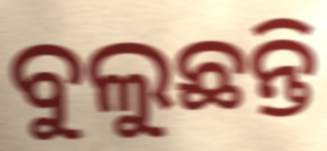
ବୁଲୁଛନ୍ତି